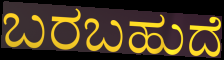
ಬರಬಹುದೆ